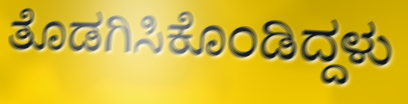
ತೊಡಗಿಸಿಕೊಂಡಿದ್ದಳು